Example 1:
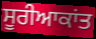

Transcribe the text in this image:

ਸੂਰੀਆਕਾਂਤ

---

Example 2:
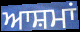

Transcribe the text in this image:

ਆਸ਼ਮਾਂ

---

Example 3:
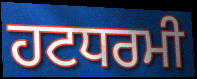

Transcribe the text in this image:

ਹਟਧਰਮੀ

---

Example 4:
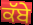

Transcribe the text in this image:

ਕੱਬੇ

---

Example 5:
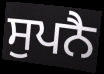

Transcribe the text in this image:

ਸੁਪਨੈ